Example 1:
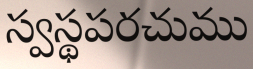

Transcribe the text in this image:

స్వస్థపరచుము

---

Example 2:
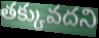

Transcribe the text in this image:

తక్కువదని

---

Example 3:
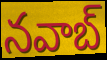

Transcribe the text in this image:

నవాబ్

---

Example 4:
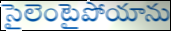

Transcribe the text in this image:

సైలెంటైపోయాను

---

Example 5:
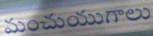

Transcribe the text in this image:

మంచుయుగాలు